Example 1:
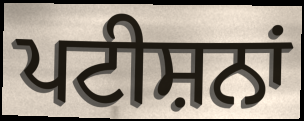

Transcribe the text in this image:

ਪਟੀਸ਼ਨਾਂ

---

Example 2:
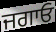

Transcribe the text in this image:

ਜਗਾਓ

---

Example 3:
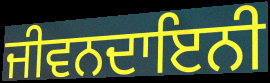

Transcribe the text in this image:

ਜੀਵਨਦਾਇਨੀ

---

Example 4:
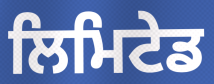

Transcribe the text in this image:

ਲਿਮਿਟੇਡ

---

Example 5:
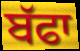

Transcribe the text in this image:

ਬੱਫਾ